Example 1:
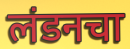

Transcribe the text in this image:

लंडनचा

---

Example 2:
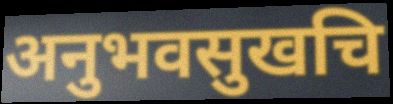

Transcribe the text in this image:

अनुभवसुखचि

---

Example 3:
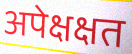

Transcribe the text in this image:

अपेक्षक्षत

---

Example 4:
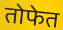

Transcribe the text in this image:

तोफेत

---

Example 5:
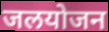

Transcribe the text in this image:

जलयोजन